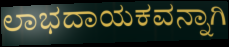
ಲಾಭದಾಯಕವನ್ನಾಗಿ